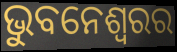
ଭୁବନେଶ୍ବରର